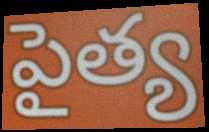
పైత్య